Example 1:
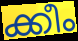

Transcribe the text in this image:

ക്കീം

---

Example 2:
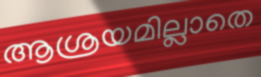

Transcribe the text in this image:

ആശ്രയമില്ലാതെ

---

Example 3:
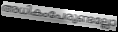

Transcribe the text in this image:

അധികംപേരുണ്ടല്ലോ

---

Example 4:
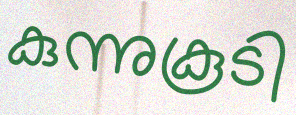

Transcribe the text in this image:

കുന്നുകൂടി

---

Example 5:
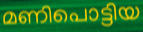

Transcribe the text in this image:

മണിപൊട്ടിയ